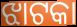
ଝାଟକା